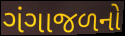
ગંગાજળનો